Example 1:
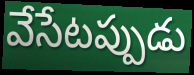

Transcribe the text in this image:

వేసేటప్పుడు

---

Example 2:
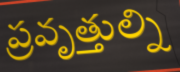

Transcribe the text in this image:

ప్రవృత్తుల్ని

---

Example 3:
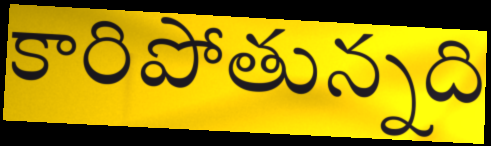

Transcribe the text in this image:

కారిపోతున్నది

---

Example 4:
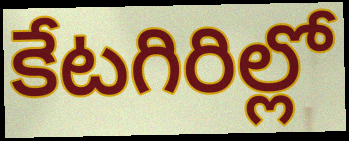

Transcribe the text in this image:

కేటగిరిల్లో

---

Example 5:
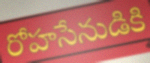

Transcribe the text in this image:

రోహసేనుడికి